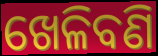
ଖେଳିବଣି